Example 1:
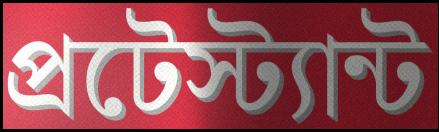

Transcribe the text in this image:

প্রটেস্ট্যান্ট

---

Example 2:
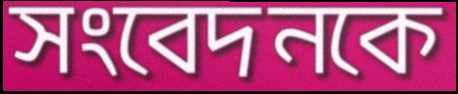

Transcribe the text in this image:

সংবেদনকে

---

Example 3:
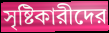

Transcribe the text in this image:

সৃষ্টিকারীদের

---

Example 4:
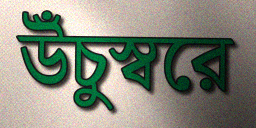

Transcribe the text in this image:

উঁচুস্বরে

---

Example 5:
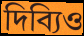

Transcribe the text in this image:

দিব্যিও